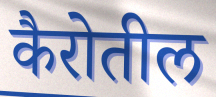
कैरोतील